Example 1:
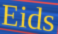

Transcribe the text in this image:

Eids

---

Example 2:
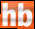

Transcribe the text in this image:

hb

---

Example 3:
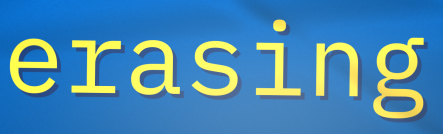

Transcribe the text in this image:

erasing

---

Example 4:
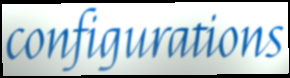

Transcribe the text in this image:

configurations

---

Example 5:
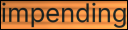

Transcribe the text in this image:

impending